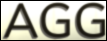
AGG